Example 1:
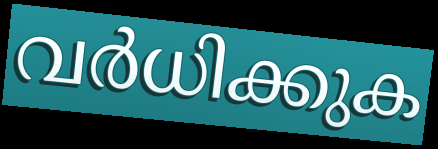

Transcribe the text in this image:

വർധിക്കുക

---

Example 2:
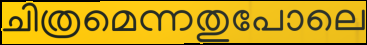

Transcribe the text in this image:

ചിത്രമെന്നതുപോലെ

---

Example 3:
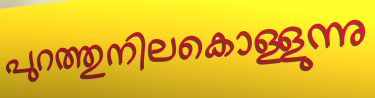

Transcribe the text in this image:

പുറത്തുനിലകൊള്ളുന്നു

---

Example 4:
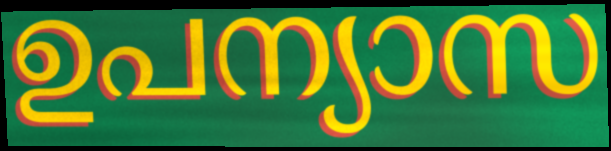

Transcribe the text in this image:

ഉപന്യാസ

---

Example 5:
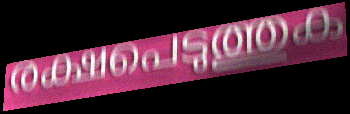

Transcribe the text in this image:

രക്ഷപെടുത്തുക